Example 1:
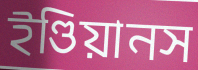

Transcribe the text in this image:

ইণ্ডিয়ানস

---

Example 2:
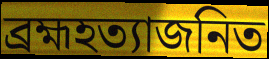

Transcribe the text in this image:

ব্রহ্মহত্যাজনিত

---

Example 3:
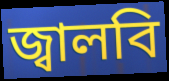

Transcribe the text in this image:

জ্বালবি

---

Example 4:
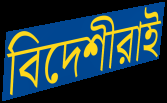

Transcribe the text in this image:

বিদেশীরাই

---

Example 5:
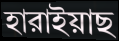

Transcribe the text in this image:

হারাইয়াছ